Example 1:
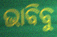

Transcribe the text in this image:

ଭାବିବୁ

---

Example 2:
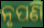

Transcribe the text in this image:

ନୃପଣି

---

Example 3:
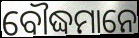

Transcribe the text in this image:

ବୌଦ୍ଧମାନେ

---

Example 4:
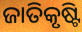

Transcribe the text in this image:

ଜାତିକୃଷ୍ଟି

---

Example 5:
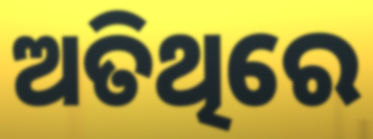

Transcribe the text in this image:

ଅତିଥିରେ